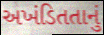
અખંડિતતાનું